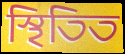
স্থিতিত